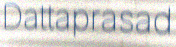
Dattaprasad